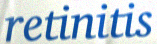
retinitis